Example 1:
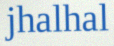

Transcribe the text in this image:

jhalhal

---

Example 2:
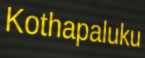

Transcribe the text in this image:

Kothapaluku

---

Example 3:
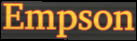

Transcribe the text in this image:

Empson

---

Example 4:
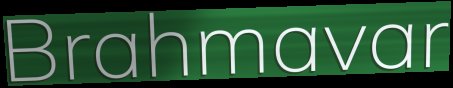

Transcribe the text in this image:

Brahmavar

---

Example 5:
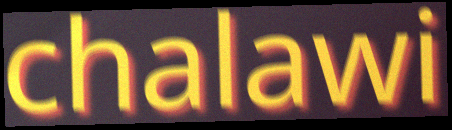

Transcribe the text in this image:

chalawi